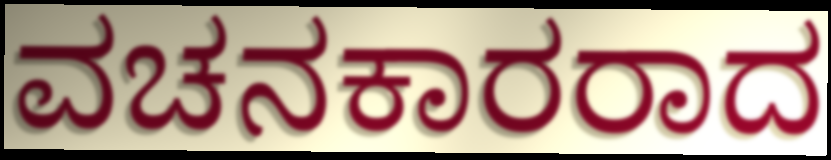
ವಚನಕಾರರಾದ